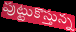
పుట్టుకొస్తున్న